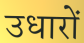
उधारों